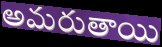
అమరుతాయి